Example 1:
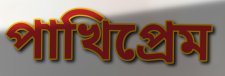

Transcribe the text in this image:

পাখিপ্রেম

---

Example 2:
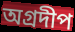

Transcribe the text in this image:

অগ্রদীপ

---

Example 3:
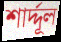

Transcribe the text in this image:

শার্দ্দূল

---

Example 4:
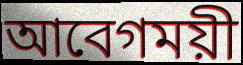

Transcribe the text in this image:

আবেগময়ী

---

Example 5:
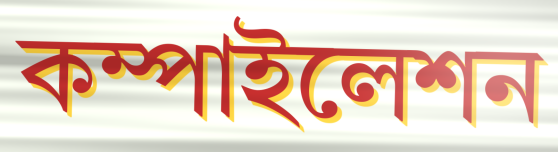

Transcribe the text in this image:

কম্পাইলেশন